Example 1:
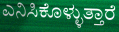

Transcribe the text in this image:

ಎನಿಸಿಕೊಳ್ಳುತ್ತಾರೆ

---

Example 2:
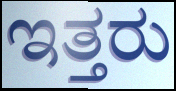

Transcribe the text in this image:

ಇತ್ತರು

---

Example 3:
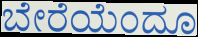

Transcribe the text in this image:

ಬೇರೆಯೆಂದೂ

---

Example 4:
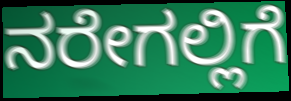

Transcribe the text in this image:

ನರೇಗಲ್ಲಿಗೆ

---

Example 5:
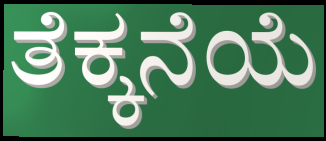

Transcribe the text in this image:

ತೆಕ್ಕನೆಯೆ